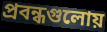
প্রবন্ধগুলোয়